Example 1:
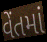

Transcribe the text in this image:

વેંતમાં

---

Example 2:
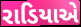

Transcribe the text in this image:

રાડિયાએ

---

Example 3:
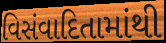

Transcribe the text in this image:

વિસંવાદિતામાંથી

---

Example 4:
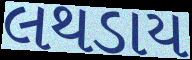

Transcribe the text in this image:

લથડાય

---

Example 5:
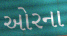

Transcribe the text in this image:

ઓરના